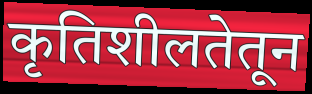
कृतिशीलतेतून